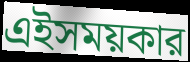
এইসময়কার